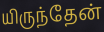
யிருந்தேன்